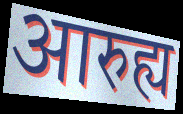
आरुह्य